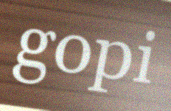
gopi